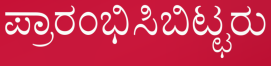
ಪ್ರಾರಂಭಿಸಿಬಿಟ್ಟರು